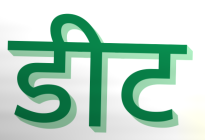
डीट